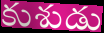
కుశుడు